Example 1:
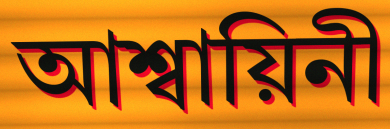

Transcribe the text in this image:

আশ্বায়িনী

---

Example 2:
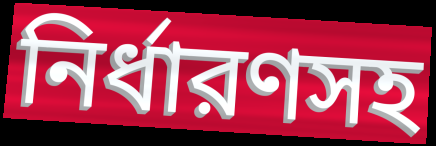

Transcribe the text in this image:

নির্ধারণসহ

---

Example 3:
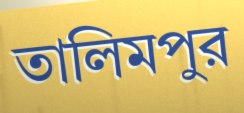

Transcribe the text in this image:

তালিমপুর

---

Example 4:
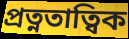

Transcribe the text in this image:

প্রত্নতাত্বিক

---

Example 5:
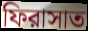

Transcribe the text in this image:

ফিরাসাত